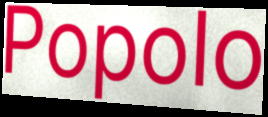
Popolo